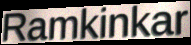
Ramkinkar